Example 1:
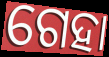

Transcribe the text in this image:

ଗେହା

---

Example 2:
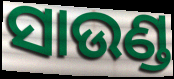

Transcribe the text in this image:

ସାଉଣ୍ଡ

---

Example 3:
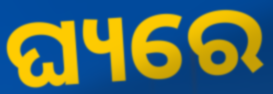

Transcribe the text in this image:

ଘ୍ୟରେ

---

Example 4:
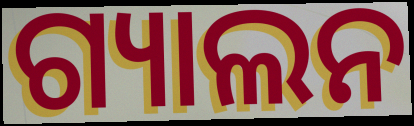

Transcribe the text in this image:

ଗ୍ୟାଲନ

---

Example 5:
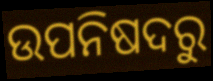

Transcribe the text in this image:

ଉପନିଷଦରୁ